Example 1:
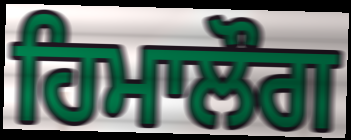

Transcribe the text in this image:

ਹਿਮਾਲੌਗ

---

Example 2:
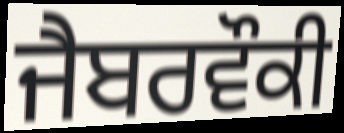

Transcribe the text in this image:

ਜੈਬਰਵੌਕੀ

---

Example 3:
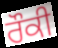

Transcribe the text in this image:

ਰੌਕੀ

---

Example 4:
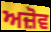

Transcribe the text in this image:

ਅਜ਼ੋਵ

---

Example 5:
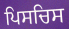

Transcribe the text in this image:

ਪਿਸਚਿਸ